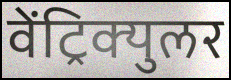
वेंट्रिक्युलर